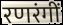
रणरंगीं